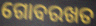
ଗୋବରଖତ